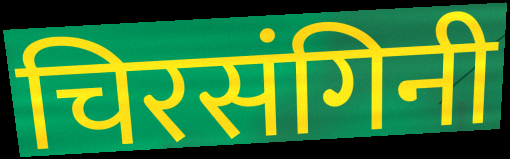
चिरसंगिनी